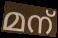
മന്